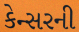
કેન્સરની